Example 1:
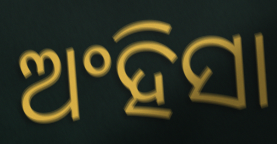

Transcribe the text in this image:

ଅଂହିସା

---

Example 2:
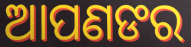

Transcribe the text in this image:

ଆପଣଙର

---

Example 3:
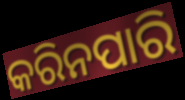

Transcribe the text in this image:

କରିନପାରି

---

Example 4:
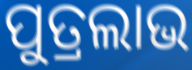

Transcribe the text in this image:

ପୁତ୍ରଲାଭ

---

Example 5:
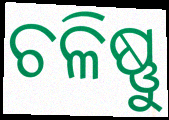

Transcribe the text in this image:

ଚଳିଷ୍ଣୁ